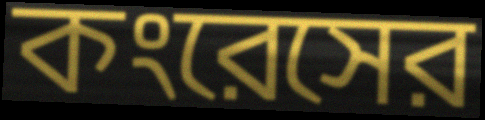
কংরেসের